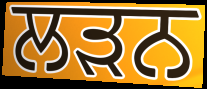
ਲਡ਼ਨ